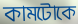
কামটোকে